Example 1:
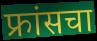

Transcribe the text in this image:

फ्रांसचा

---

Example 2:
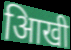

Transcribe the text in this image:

आिखी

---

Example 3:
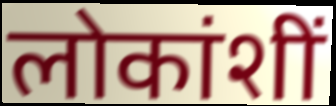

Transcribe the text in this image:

लोकांशीं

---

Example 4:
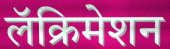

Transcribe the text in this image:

लॅक्रिमेशन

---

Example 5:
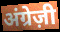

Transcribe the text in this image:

अंग्रेज़ी